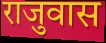
राजुवास